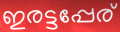
ഇരട്ടപ്പേര്